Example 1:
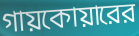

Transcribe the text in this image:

গায়কোয়ারের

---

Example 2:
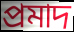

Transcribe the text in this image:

প্রমাদ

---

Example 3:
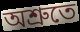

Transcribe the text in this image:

অশ্রুতে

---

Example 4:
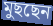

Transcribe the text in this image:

মুছছেন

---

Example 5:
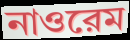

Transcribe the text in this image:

নাওরেম